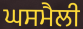
ਘਸਮੈਲੀ